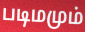
படிமமும்